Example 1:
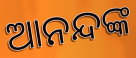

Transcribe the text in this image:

ଆନନ୍ଦଙ୍କ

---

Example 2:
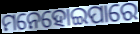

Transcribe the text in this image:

ମନେହୋଇପାରେ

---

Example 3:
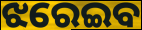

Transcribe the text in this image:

ଝରେଇବ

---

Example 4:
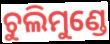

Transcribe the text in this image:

ଚୁଲିମୁଣ୍ଡେ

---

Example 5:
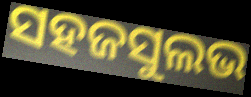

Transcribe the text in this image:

ସହଜସୁଲଭ